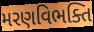
મરણવિભક્તિ